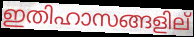
ഇതിഹാസങ്ങളില്